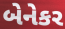
બેનેકર